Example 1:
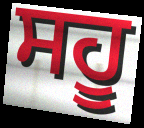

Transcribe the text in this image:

ਸਹੂ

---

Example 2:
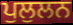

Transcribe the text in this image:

ਪੁਲੁਲਨ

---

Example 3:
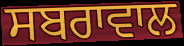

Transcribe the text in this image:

ਸਬਰਾਵਾਲ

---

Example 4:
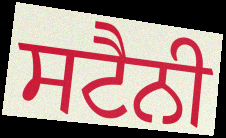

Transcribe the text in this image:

ਸਟੈਨੀ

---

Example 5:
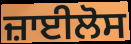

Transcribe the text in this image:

ਜ਼ਾਈਲੋਸ